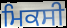
ਮਿਕਸੀ